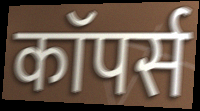
कॉपर्स